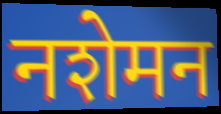
नशेमन